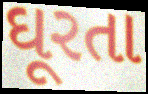
ઘૂરતા